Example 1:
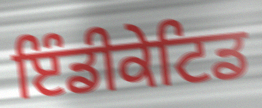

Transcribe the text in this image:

ਇੰਡੀਕੇਟਿਡ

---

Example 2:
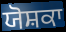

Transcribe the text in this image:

ਯੋਸ਼ਕਾ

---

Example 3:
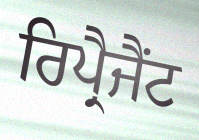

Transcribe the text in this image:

ਰਿਪ੍ਰੈਜੈਂਟ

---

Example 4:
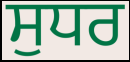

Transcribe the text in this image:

ਸੁਧਰ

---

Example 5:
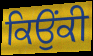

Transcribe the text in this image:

ਕਿਉਂਕੀ